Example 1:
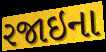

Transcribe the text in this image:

રજાઇના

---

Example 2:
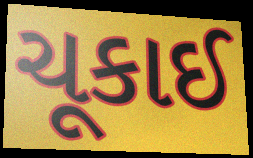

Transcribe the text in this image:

ચૂકાઈ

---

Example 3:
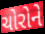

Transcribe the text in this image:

ચોરોને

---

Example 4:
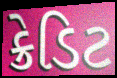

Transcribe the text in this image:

ક્રેડિટ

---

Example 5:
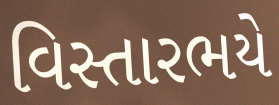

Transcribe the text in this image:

વિસ્તારભયે